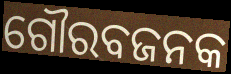
ଗୌରବଜନକ